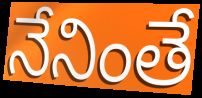
నేనింతే